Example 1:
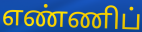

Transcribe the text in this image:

எண்ணிப்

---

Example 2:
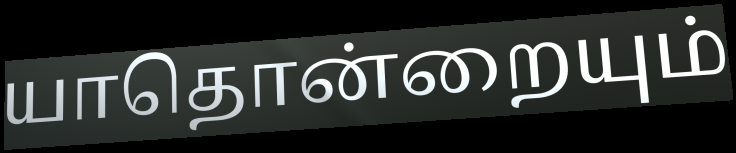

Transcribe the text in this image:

யாதொன்றையும்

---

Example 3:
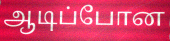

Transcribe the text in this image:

ஆடிப்போன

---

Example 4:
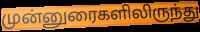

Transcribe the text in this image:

முன்னுரைகளிலிருந்து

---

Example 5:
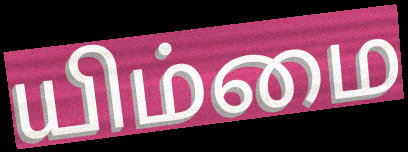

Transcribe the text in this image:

யிம்மை